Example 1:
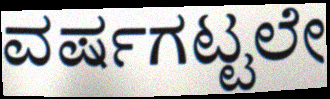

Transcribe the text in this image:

ವರ್ಷಗಟ್ಟಲೇ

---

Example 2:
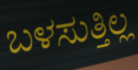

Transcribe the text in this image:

ಬಳಸುತ್ತಿಲ್ಲ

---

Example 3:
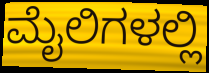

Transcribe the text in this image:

ಮೈಲಿಗಳಲ್ಲಿ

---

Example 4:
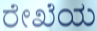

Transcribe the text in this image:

ರೇಖೆಯ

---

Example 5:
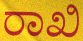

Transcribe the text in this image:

ರಾಖಿ